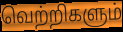
வெற்றிகளும்